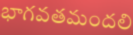
భాగవతమందలి